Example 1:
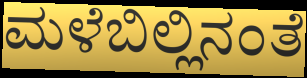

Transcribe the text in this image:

ಮಳೆಬಿಲ್ಲಿನಂತೆ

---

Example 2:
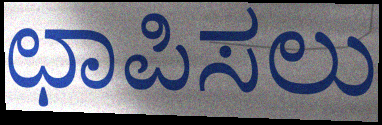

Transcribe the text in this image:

ಛಾಪಿಸಲು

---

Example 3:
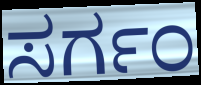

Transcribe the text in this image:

ಸರ್ಗಂ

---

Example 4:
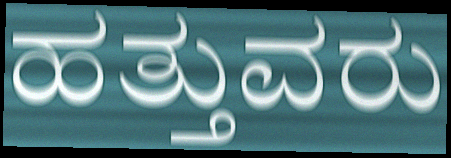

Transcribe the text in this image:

ಹತ್ತುವರು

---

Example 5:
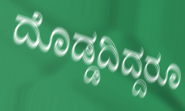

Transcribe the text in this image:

ದೊಡ್ಡದಿದ್ದರೂ